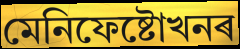
মেনিফেষ্টোখনৰ